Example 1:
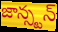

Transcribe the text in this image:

జాన్స్టన్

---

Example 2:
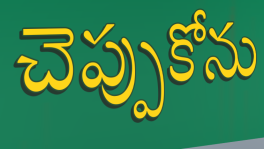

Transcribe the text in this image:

చెప్పుకోను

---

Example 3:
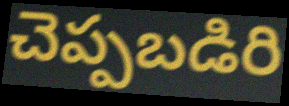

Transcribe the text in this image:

చెప్పబడిరి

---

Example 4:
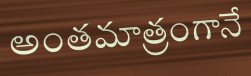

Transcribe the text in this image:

అంతమాత్రంగానే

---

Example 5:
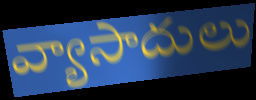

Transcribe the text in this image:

వ్యాసాదులు